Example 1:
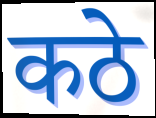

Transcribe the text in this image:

कठे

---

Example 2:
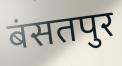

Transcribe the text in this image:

बंसतपुर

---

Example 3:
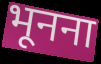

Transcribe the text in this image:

भूनना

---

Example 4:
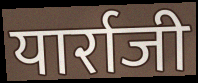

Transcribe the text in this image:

यार्राजी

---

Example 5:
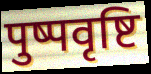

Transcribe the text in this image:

पुष्पवृष्टि